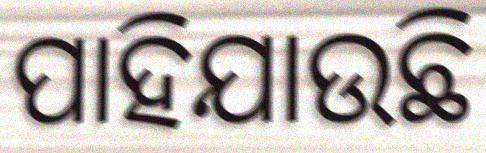
ପାହିଯାଉଛି